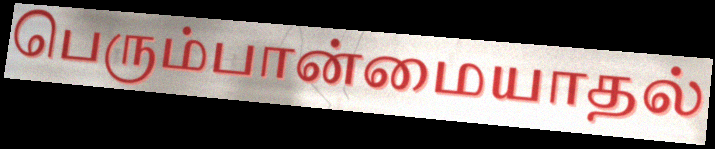
பெரும்பான்மையாதல்